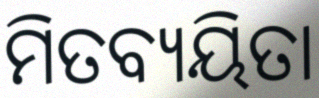
ମିତବ୍ୟୟିତା